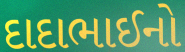
દાદાભાઈનો